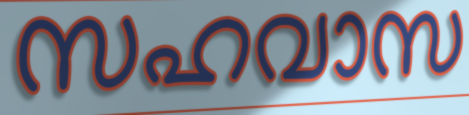
സഹവാസ